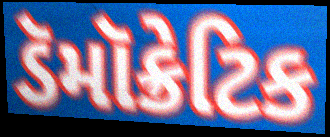
ડૅમૉક્રેટિક